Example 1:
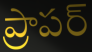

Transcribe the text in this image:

ప్రాపర్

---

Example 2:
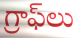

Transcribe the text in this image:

గ్రాఫ్‌లు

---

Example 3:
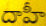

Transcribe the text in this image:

దాహీ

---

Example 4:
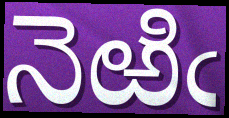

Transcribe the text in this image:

నెఱిఁ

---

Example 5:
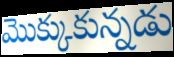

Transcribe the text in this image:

మొక్కుకున్నడు